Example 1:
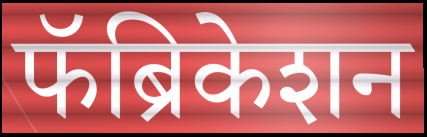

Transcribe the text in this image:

फॅब्रिकेशन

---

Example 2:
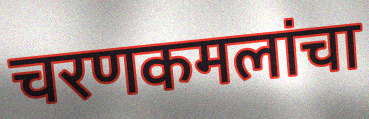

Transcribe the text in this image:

चरणकमलांचा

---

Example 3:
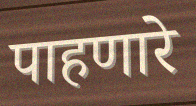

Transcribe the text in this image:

पाहणारे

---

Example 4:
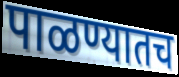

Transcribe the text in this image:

पाळण्यातच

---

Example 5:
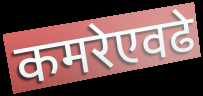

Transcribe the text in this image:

कमरेएवढे